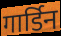
गार्डिन